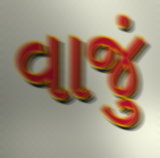
વાજું